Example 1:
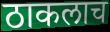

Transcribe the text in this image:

ठाकलाच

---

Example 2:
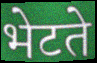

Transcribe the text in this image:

भेटते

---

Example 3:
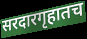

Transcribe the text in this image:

सरदारगृहातच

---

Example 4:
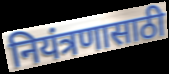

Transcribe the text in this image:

नियंत्रणासाठी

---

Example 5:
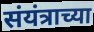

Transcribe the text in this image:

संयंत्राच्या